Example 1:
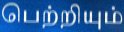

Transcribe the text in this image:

பெற்றியும்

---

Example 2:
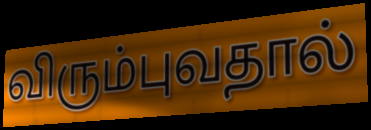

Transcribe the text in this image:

விரும்புவதால்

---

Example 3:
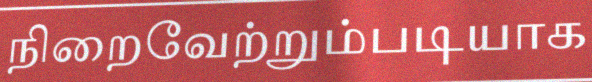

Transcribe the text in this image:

நிறைவேற்றும்படியாக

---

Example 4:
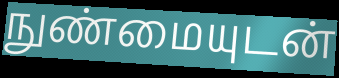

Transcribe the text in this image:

நுண்மையுடன்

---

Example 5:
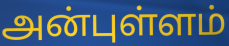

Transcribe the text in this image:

அன்புள்ளம்